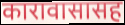
कारावासासह